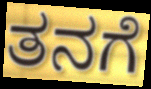
ತನಗೆ